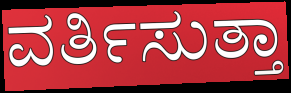
ವರ್ತಿಸುತ್ತಾ